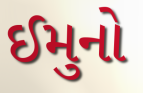
ઈમુનો